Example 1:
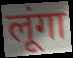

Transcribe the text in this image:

लूंगा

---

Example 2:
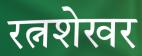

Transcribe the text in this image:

रत्नशेखर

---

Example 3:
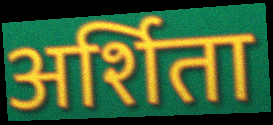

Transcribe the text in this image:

अर्शिता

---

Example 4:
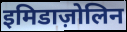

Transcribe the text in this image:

इमिडाज़ोलिन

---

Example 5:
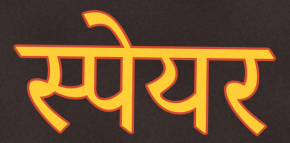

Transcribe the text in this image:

स्पेयर